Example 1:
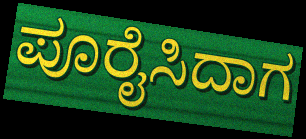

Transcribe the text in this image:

ಪೂರೈಸಿದಾಗ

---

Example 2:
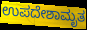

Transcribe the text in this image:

ಉಪದೇಶಾಮೃತ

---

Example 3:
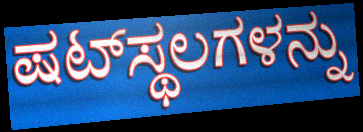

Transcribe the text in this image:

ಷಟ್‌ಸ್ಥಲಗಳನ್ನು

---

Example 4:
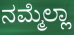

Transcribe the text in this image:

ನಮ್ಮೆಲ್ಲಾ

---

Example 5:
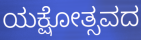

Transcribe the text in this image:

ಯಕ್ಷೋತ್ಸವದ